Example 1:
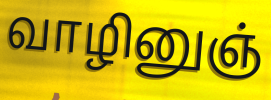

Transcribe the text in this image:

வாழினுஞ்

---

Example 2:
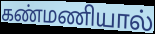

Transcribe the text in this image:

கண்மணியால்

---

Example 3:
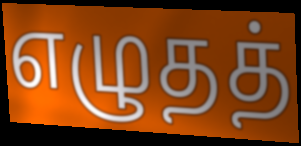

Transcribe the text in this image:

எழுதத்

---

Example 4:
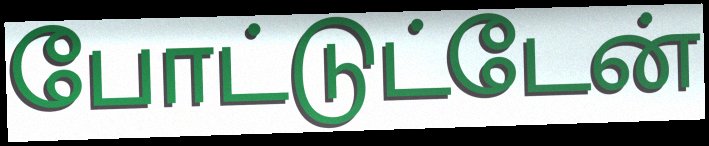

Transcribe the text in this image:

போட்டுட்டேன்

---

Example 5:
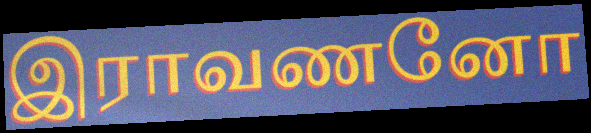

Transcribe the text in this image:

இராவணனோ